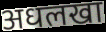
अधलखा